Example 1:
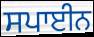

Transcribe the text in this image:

ਸਪਾਈਨ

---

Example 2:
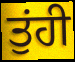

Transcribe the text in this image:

ਤੁਂਹੀ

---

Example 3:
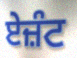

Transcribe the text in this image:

ਏਜ਼ੰਟ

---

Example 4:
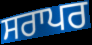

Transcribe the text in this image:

ਸਰਾਪਰ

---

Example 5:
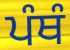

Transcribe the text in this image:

ਪੰਥੰ